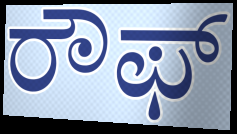
ರೌಫ್